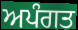
ਅਪੰਗਤ